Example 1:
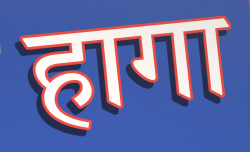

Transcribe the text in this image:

हागा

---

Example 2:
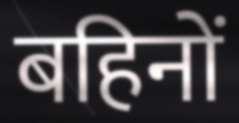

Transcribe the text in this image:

बहिनों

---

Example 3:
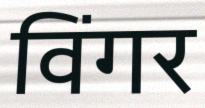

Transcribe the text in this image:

विंगर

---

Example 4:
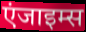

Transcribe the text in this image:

एंजाइम्‍स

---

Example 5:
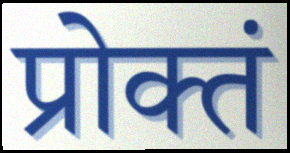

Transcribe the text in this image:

प्रोक्तं